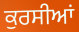
ਕੁਰਸੀਆਂ